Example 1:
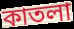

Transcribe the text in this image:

কাতলা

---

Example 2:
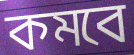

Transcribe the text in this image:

কমবে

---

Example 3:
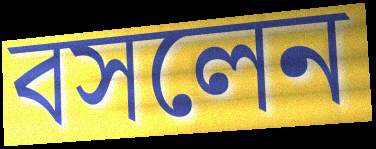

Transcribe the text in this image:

বসলেন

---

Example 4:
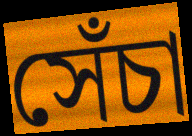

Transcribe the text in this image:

সেঁচা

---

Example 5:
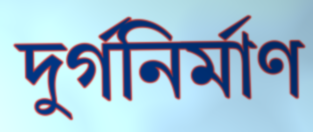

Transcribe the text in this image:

দুর্গনির্মাণ